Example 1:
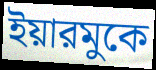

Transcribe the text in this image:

ইয়ারমুকে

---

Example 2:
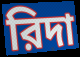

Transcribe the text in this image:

রিদা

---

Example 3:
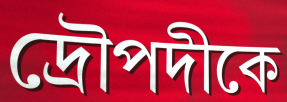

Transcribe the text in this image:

দ্রৌপদীকে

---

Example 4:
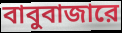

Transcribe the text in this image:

বাবুবাজারে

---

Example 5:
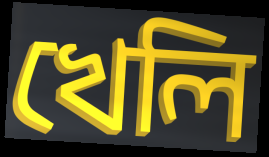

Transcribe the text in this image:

খেলি